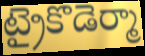
ట్రైకొడెర్మా